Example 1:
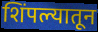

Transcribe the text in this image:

शिंपल्यातून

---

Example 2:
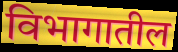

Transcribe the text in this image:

विभागातील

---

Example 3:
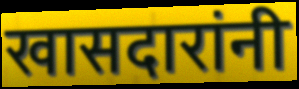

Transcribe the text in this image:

खासदारांनी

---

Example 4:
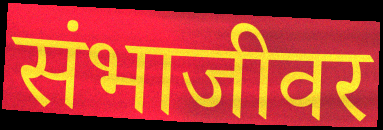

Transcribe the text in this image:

संभाजीवर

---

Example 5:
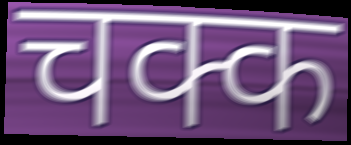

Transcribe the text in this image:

चक्क